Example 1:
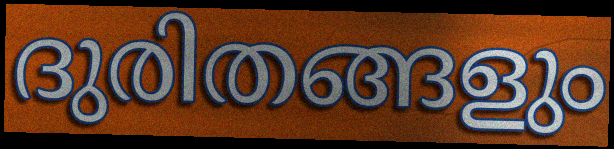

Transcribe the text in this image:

ദുരിതങ്ങളും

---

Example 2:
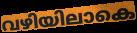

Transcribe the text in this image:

വഴിയിലാകെ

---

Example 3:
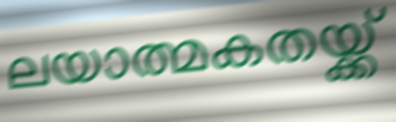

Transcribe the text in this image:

ലയാത്മകതയ്ക്ക്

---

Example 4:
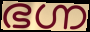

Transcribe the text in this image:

ഭഗ്ന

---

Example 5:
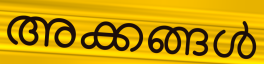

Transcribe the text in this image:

അക്കങ്ങൾ